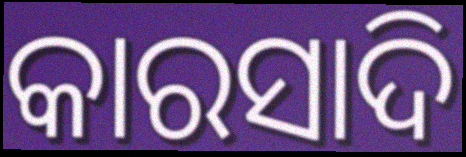
କାରସାଦି